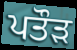
ਪਤੌੜ